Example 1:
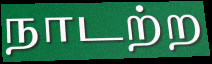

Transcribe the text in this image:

நாடற்ற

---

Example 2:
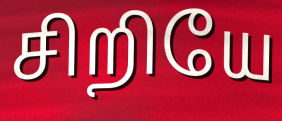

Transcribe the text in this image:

சிறியே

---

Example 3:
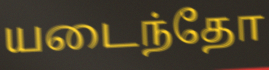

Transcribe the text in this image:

யடைந்தோ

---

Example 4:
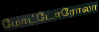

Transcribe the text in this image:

மோட்டோரோலா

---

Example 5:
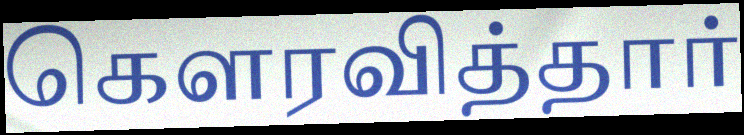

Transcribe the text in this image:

கௌரவித்தார்